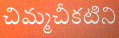
చిమ్మచీకటిని